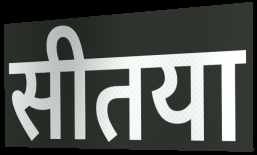
सीतया